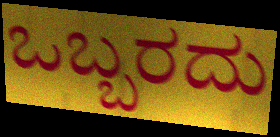
ಒಬ್ಬರದು